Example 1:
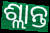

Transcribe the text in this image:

ଶ୍ଲାନ୍ତ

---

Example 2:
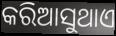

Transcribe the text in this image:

କରିଆସୁଥାଏ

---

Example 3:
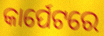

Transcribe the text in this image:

କାର୍ପେଟରେ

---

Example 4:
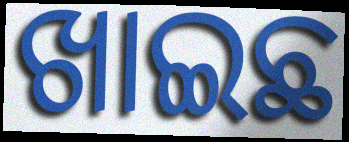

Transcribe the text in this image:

ଖାଇଛ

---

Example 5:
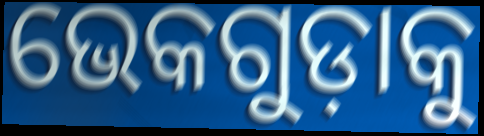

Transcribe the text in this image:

ଭେକଗୁଡ଼ାକୁ